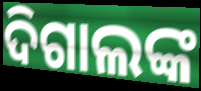
ଦିଗାଲଙ୍କ